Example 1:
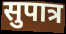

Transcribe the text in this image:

सुपात्र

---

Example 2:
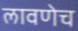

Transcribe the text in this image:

लावणेच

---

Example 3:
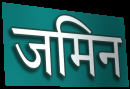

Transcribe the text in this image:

जमिन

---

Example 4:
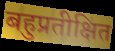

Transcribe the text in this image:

बहुप्रतीक्षित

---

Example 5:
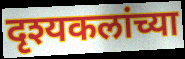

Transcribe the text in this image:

दृश्यकलांच्या